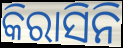
କିରାସିନି